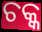
ଚକ୍କ